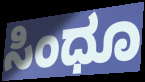
ಸಿಂಧೂ